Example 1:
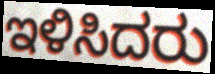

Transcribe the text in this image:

ಇಳಿಸಿದರು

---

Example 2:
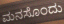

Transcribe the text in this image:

ಮನಸೊಂದು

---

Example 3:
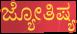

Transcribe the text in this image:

ಜ್ಯೋತಿಷ್ಯ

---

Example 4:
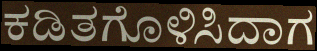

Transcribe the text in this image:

ಕಡಿತಗೊಳಿಸಿದಾಗ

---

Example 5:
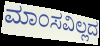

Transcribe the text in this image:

ಮಾಂಸವಿಲ್ಲದ